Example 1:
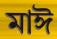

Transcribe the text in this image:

মাঈ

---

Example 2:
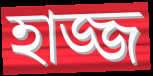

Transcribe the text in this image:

হাজ্জ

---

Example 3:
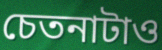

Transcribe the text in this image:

চেতনাটাও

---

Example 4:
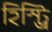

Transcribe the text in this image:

হিস্ট্রি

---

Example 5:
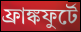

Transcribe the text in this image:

ফ্রাঙ্কফুর্টে